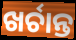
ଖର୍ଚାନ୍ତ